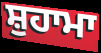
ਸ਼ੁਹਾਮਾ